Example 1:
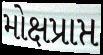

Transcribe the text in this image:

મોક્ષપ્રાપ્ત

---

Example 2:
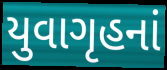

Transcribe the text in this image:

યુવાગૃહનાં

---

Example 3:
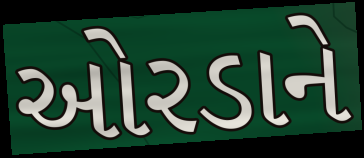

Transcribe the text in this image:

ઓરડાને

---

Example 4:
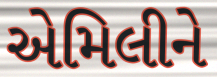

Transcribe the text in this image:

એમિલીને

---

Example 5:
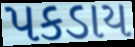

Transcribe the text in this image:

પકડાય